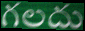
గలదు